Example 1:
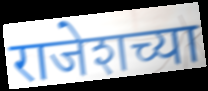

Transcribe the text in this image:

राजेशच्या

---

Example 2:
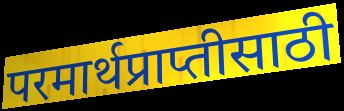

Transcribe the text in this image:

परमार्थप्राप्तीसाठी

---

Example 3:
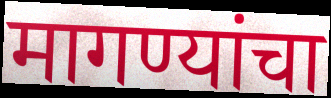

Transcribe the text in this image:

मागण्यांचा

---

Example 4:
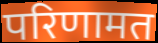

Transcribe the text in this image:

परिणामत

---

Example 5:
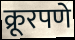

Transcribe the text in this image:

क्रूरपणे